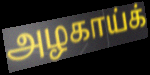
அழகாய்க்